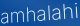
amhalahi